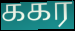
ககர